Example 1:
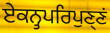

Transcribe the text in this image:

ਏਕਨ੍ਤਪਰਿਪੁਣ੍ਣਂ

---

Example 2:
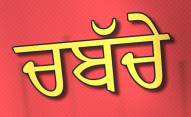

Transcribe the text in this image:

ਚਬੱਚੇ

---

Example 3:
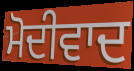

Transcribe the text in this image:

ਮੋਦੀਵਾਦ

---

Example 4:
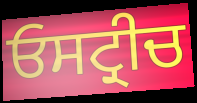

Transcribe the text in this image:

ਓਸਟ੍ਰੀਚ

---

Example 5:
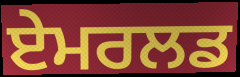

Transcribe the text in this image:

ਏਮਰਲਡ